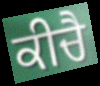
ਕੀਚੈ